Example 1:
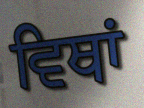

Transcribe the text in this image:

ਵਿਥਾਂ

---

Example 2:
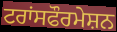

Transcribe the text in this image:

ਟਰਾਂਸਫੌਰਮੇਸ਼ਨ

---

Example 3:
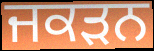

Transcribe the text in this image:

ਜਕੜਨ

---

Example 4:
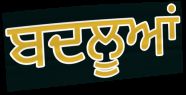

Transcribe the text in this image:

ਬਦਲੂਆਂ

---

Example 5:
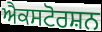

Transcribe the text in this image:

ਐਕਸਟੋਰਸ਼ਨ